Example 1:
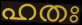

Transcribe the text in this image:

ഹതഃ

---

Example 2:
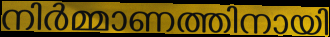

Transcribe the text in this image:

നിർമ്മാണത്തിനായി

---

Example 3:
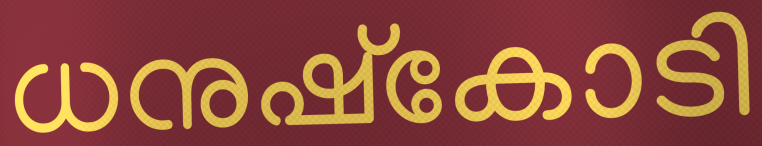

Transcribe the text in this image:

ധനുഷ്കോടി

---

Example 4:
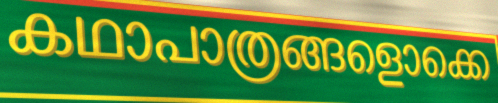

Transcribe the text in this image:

കഥാപാത്രങ്ങളൊക്കെ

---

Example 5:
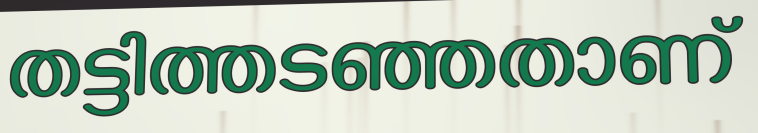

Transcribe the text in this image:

തട്ടിത്തടഞ്ഞതാണ്